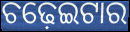
ଚଢ଼େଇଟାର